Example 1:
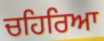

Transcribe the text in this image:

ਚਹਿਰਿਆ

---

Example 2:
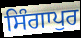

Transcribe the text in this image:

ਸਿੰਗਾਪੁਰ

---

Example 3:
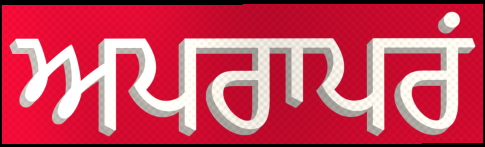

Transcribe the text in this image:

ਅਪਰਾਪਰਂ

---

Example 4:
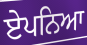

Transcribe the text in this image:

ਏਪਨਿਆ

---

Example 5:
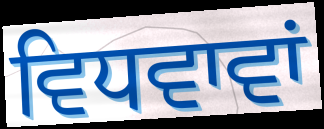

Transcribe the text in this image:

ਵਿਧਵਾਵਾਂ